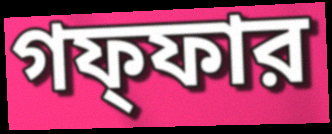
গফ্ফার